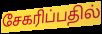
சேகரிப்பதில்